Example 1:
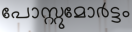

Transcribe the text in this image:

പോസ്റ്റുമോർട്ടം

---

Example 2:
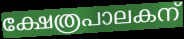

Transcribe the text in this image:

ക്ഷേത്രപാലകന്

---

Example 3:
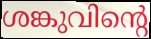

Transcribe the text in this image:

ശങ്കുവിന്റെ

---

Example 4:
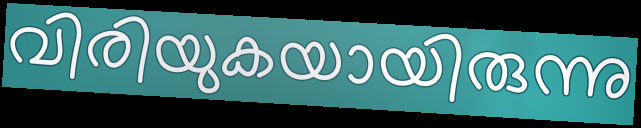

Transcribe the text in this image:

വിരിയുകയായിരുന്നു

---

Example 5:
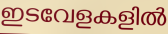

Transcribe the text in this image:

ഇടവേളകളിൽ